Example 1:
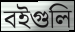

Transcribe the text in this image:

বইগুলি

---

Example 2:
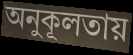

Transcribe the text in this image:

অনুকূলতায়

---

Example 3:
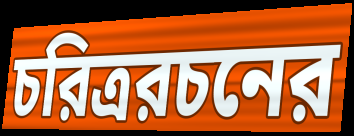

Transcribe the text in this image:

চরিত্ররচনের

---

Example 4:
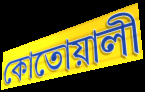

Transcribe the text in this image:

কোতোয়ালী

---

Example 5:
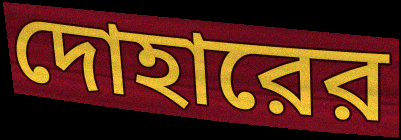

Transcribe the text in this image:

দোহারের